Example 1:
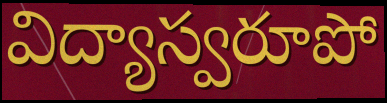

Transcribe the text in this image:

విద్యాస్వరూపో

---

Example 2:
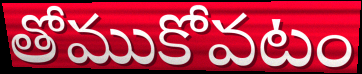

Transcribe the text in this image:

తోముకోవటం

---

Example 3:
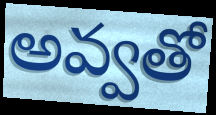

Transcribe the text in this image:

అవ్వతో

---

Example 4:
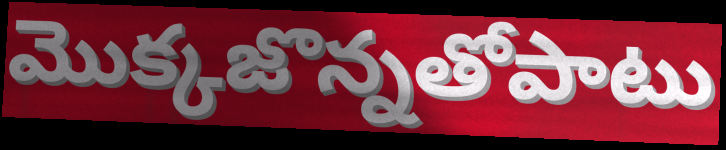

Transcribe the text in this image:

మొక్కజొన్నతోపాటు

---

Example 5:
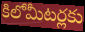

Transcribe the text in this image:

కిలోమీటర్లకు